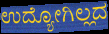
ಉದ್ಯೋಗಿಲ್ಲದ